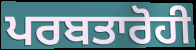
ਪਰਬਤਾਰੋਹੀ